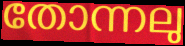
തോന്നലു